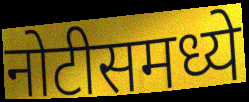
नोटीसमध्ये